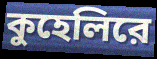
কুহেলিরে